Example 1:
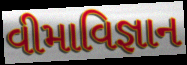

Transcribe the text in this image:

વીમાવિજ્ઞાન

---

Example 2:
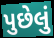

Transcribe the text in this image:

પુછેલું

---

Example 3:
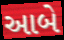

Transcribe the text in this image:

આબે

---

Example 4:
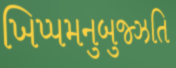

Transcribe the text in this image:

ખિપ્પમનુબુજ્ઝતિ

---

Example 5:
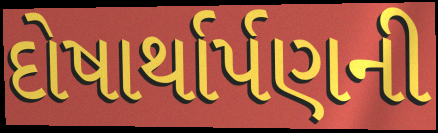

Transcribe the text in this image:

દોષાર્થાર્પણની